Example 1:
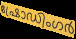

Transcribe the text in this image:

ഷ്രോഡിംഗർ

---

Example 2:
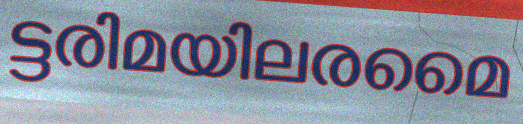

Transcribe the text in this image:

ട്ടരിമയിലരമൈ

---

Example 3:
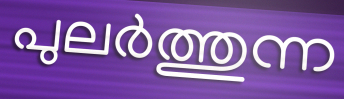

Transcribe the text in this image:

പുലർത്തുന്ന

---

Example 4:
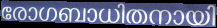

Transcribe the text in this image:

രോഗബാധിതനായി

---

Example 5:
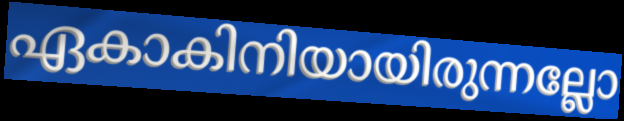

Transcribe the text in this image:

ഏകാകിനിയായിരുന്നല്ലോ